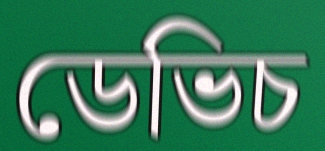
ডেভিচ